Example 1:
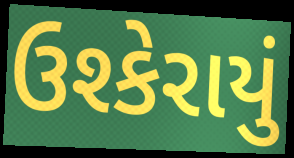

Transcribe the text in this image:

ઉશ્કેરાયું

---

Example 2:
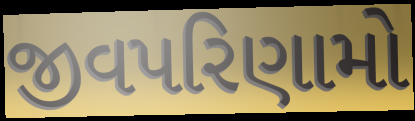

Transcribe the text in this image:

જીવપરિણામો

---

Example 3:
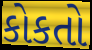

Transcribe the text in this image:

કોકતો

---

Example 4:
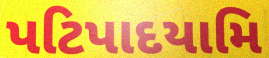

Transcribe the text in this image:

પટિપાદયામિ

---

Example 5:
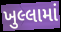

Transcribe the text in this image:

ખુલ્લામાં